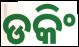
ଡକିଂ